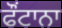
ਫੌਂਟਾਨਾ